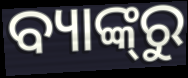
ବ୍ୟାଙ୍କ୍‌ରୁ